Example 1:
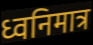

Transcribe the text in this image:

ध्वनिमात्र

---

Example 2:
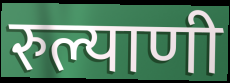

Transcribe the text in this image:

रुल्याणी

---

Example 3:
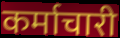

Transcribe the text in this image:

कर्माचारी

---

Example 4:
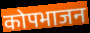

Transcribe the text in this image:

कोपभाजन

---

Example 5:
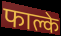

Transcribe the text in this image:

फाल्के